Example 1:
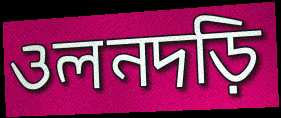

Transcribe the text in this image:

ওলনদড়ি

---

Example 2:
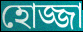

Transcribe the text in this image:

হোজ্জা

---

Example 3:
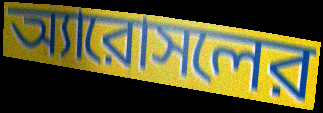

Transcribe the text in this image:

অ্যারোসলের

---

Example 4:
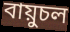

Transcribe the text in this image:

বায়ুচল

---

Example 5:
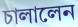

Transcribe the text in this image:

চালালেন